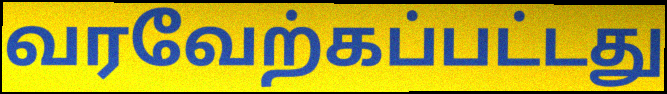
வரவேற்கப்பட்டது